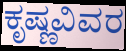
ಕೃಷ್ಣವಿವರ